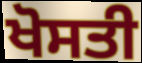
ਖੋਸਤੀ